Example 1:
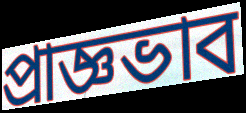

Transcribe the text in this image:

প্রাজ্ঞভাব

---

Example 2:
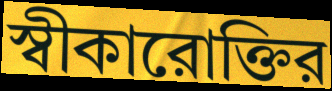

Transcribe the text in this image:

স্বীকারোক্তির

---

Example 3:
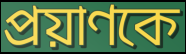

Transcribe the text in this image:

প্রয়াণকে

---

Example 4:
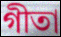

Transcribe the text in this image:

গীতা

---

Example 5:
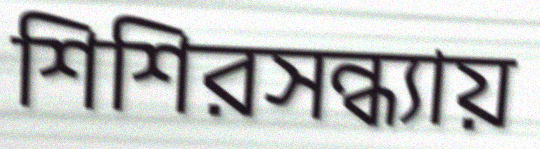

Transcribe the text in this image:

শিশিরসন্ধ্যায়